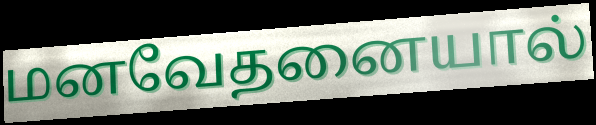
மனவேதனையால்